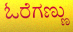
ಓರೆಗಣ್ಣು